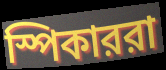
স্পিকাররা